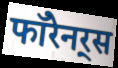
फॉरेनर्स